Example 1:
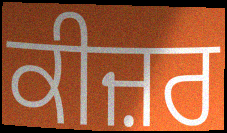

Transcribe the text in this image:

ਕੀਜ਼ਰ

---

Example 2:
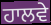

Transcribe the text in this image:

ਹਾਲਵੇ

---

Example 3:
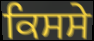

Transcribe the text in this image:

ਕਿਸਸੇ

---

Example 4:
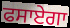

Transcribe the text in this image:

ਫਸਾਏਗਾ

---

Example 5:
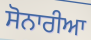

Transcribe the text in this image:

ਸੋਨਾਰੀਆ